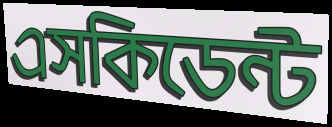
এসকিডেন্ট